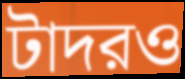
টাদরও